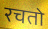
रचतो